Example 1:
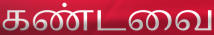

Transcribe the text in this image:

கண்டவை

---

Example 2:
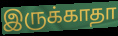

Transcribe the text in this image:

இருக்காதா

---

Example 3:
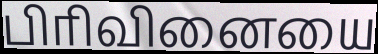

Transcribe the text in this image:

பிரிவினையை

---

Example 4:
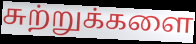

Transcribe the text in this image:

சுற்றுக்களை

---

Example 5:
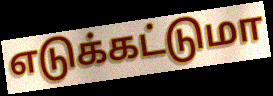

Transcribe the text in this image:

எடுக்கட்டுமா